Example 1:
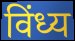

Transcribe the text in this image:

विंध्य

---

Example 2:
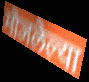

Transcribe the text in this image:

मोजलेल्या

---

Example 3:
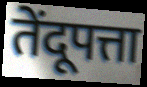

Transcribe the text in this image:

तेंदूपत्ता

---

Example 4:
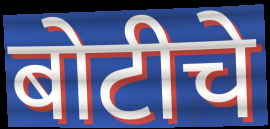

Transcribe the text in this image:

बोटीचे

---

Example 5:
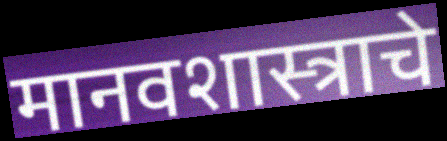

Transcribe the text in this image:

मानवशास्त्राचे